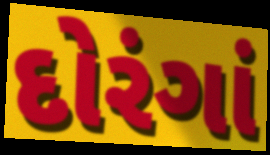
દોરંગાં